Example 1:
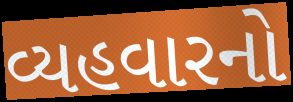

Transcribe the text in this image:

વ્યહવારનો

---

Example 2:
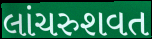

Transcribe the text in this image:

લાંચરુશવત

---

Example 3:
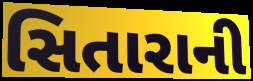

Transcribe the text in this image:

સિતારાની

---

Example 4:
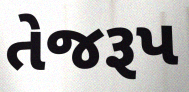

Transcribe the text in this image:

તેજરૂપ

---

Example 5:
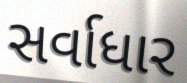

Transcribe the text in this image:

સર્વાધાર